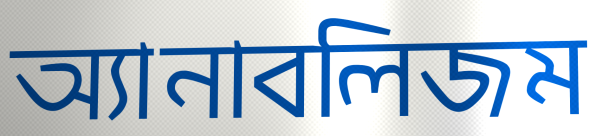
অ্যানাবলিজম